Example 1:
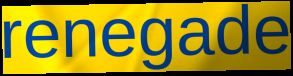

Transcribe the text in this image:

renegade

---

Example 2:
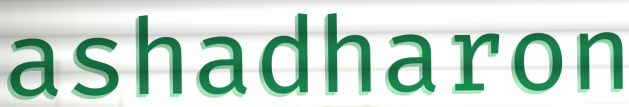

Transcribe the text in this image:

ashadharon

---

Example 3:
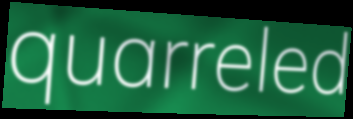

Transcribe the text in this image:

quarreled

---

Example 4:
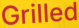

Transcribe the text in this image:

Grilled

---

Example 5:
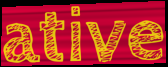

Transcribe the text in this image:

ative